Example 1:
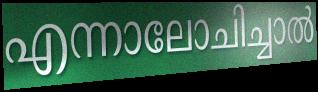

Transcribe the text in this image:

എന്നാലോചിച്ചാൽ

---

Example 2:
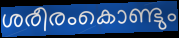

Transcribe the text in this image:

ശരീരംകൊണ്ടും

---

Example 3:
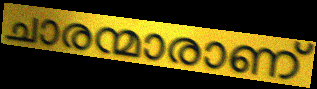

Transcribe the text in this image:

ചാരന്മാരാണ്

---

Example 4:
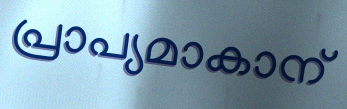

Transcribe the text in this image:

പ്രാപ്യമാകാന്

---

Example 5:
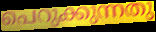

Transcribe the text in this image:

പെറുക്കുന്നതു